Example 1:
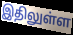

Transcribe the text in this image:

இதிலுள்ள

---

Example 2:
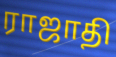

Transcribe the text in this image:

ராஜாதி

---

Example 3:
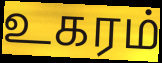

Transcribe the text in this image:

உகரம்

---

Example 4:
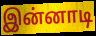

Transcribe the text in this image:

இன்னாடி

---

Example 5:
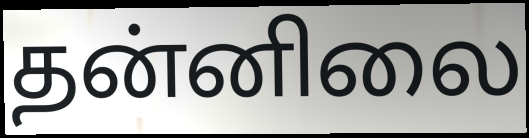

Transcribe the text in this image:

தன்னிலை